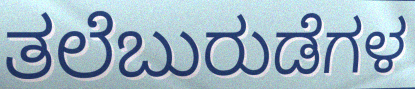
ತಲೆಬುರುಡೆಗಳ